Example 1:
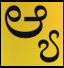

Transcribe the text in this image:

ಆ್ಯ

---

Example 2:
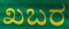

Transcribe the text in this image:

ಖಬರ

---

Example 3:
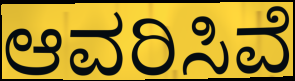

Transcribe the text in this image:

ಆವರಿಸಿವೆ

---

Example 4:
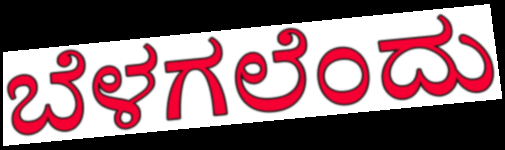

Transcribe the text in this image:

ಬೆಳಗಲೆಂದು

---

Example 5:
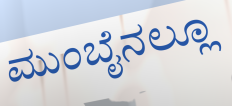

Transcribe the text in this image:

ಮುಂಬೈನಲ್ಲೂ